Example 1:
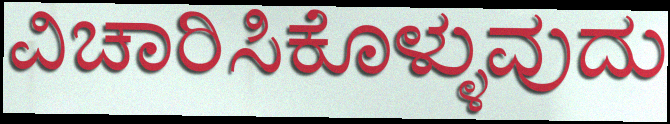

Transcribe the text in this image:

ವಿಚಾರಿಸಿಕೊಳ್ಳುವುದು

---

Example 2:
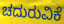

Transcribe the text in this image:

ಚದುರುವಿಕೆ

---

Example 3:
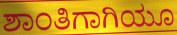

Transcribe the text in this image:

ಶಾಂತಿಗಾಗಿಯೂ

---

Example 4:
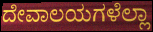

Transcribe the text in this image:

ದೇವಾಲಯಗಳೆಲ್ಲಾ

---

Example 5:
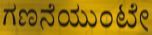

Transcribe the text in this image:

ಗಣನೆಯುಂಟೇ